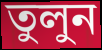
তুলুন